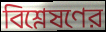
বিশ্নেষণের